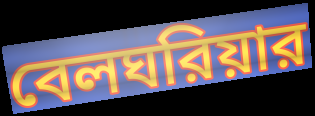
বেলঘরিয়ার